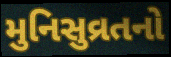
મુનિસુવ્રતનો